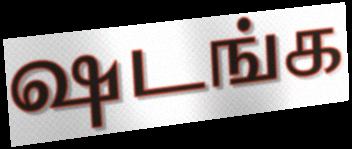
ஷடங்க